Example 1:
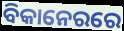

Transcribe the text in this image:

ବିକାନେରରେ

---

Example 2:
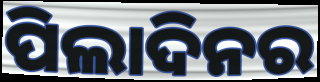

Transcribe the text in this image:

ପିଲାଦିନର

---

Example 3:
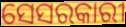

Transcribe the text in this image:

ସେସରକାରୀ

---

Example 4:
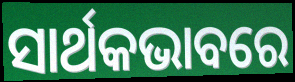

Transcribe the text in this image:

ସାର୍ଥକଭାବରେ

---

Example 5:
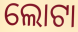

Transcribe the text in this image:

ଲୋଟା